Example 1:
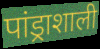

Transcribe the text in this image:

पांड्राशाली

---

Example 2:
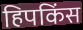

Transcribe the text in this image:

हिपकिंस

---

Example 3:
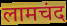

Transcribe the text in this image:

लामचंद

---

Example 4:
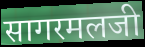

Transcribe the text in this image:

सागरमलजी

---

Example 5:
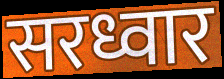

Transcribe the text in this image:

सरध्वार